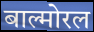
बाल्‍मोरल